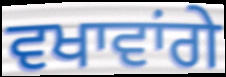
ਵਖਾਵਾਂਗੇ